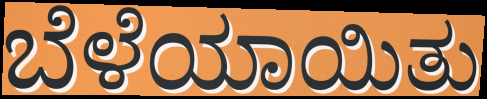
ಬೆಳೆಯಾಯಿತು